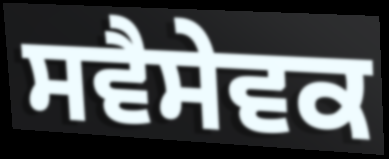
ਸਵੈਸੇਵਕ